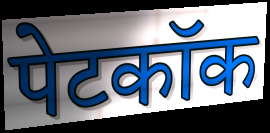
पेटकॉक